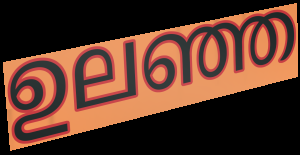
ഉലഞ്ഞ